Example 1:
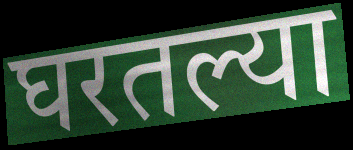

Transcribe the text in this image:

घरतल्या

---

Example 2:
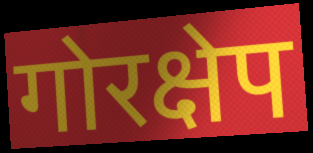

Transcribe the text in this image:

गोरक्षेप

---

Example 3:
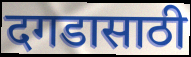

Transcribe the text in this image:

दगडासाठी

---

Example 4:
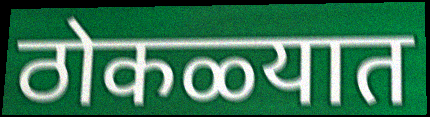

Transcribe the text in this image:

ठोकळ्यात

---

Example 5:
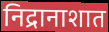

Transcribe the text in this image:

निद्रानाशात